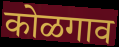
कोळगाव